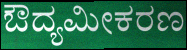
ಔದ್ಯಮೀಕರಣ